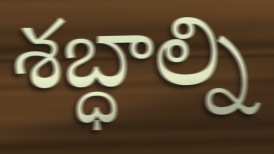
శబ్ధాల్ని